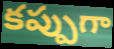
కప్పుగా